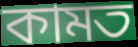
কামত